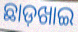
ଛାଡ଼ଖାଇ